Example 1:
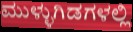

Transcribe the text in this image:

ಮುಳ್ಳುಗಿಡಗಳಲ್ಲಿ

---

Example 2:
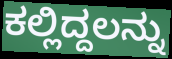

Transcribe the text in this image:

ಕಲ್ಲಿದ್ದಲನ್ನು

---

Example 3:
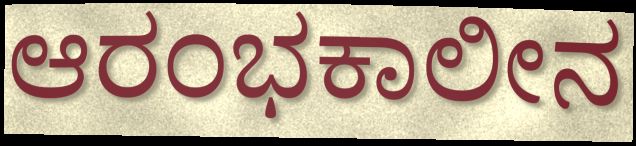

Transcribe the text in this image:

ಆರಂಭಕಾಲೀನ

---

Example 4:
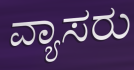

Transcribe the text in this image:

ವ್ಯಾಸರು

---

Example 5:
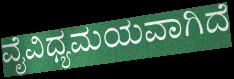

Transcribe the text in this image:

ವೈವಿಧ್ಯಮಯವಾಗಿದೆ